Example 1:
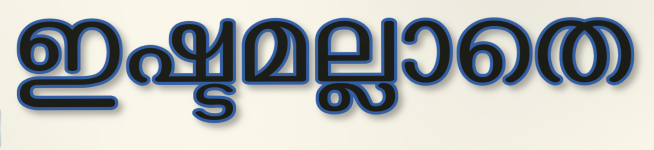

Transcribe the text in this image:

ഇഷ്ടമല്ലാതെ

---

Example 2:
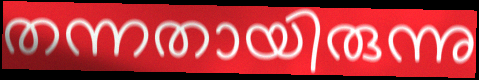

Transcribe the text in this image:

തന്നതായിരുന്നു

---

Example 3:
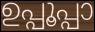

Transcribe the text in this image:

ഉപ്പൂപ്പാ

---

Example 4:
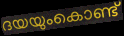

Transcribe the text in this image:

ദയയുംകൊണ്ട്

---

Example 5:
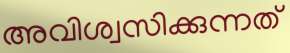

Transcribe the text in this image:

അവിശ്വസിക്കുന്നത്